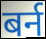
बर्न